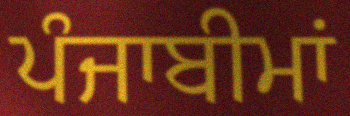
ਪੰਜਾਬੀਮਾਂ